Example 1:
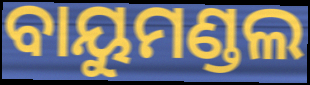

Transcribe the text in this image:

ବାୟୁମଣ୍ଡଲ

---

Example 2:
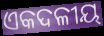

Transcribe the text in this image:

ଏକଦଳୀୟ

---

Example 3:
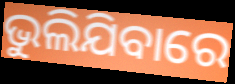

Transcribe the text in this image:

ଭୁଲିଯିବାରେ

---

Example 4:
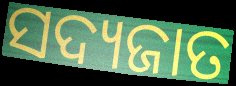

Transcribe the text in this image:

ସଦ୍ୟଜାତ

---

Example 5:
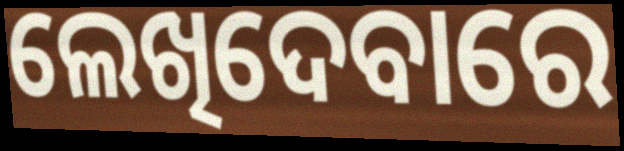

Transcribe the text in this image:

ଲେଖିଦେବାରେ